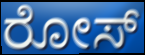
ರೋಸ್